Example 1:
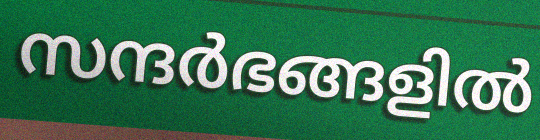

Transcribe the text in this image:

സന്ദർഭങ്ങളിൽ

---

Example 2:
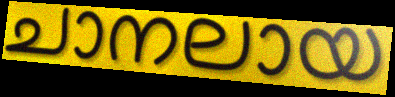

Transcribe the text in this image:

ചാനലായ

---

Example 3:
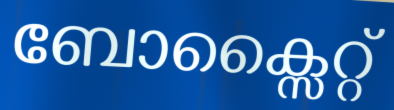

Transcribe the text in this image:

ബോക്സൈറ്റ്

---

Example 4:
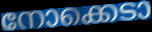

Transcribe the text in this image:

നോക്കെടാ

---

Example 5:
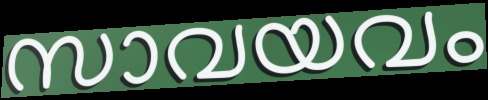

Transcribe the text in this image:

സാവയവം